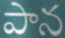
పాన